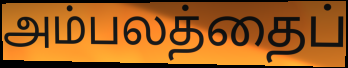
அம்பலத்தைப்